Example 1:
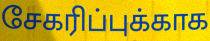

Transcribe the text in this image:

சேகரிப்புக்காக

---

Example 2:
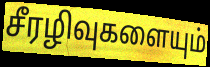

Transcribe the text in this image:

சீரழிவுகளையும்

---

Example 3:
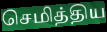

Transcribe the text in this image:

செமித்திய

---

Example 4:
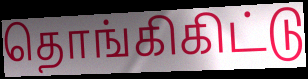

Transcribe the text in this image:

தொங்கிகிட்டு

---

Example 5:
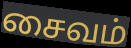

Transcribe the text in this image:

சைவம்